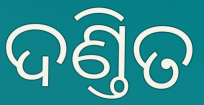
ଦଣ୍ତିତ